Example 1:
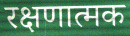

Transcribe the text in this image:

रक्षणात्मक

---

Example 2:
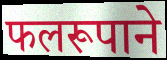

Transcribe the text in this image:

फलरूपाने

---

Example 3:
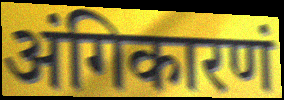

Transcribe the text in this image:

अंगिकारणं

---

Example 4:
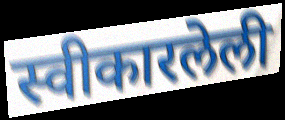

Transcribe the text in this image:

स्वीकारलेली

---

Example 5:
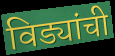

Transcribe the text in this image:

विड्यांची